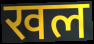
खल